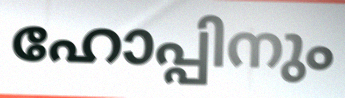
ഹോപ്പിനും